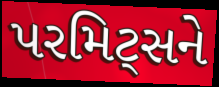
પરમિટ્સને